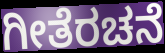
ಗೀತೆರಚನೆ